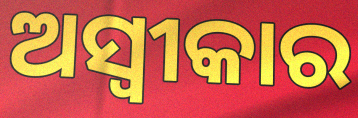
ଅସ୍ବୀକାର